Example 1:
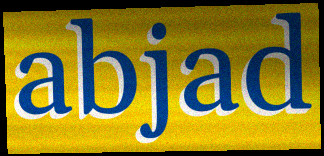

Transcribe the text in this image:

abjad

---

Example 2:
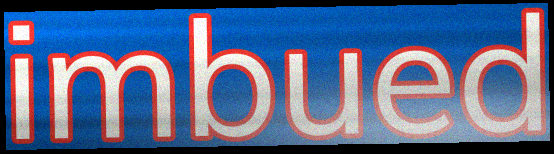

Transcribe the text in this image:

imbued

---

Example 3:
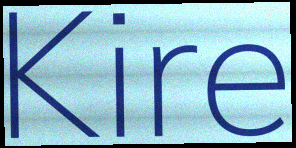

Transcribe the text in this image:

Kire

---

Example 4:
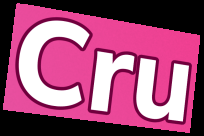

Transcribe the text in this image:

Cru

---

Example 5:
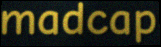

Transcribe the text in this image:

madcap